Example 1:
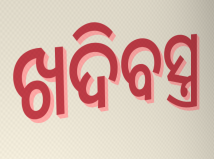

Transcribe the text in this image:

ଖଦିବସ୍ତ୍ର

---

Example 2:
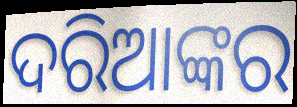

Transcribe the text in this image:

ଦରିଆଙ୍କର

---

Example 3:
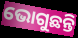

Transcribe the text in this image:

ଭୋଗୁଛନ୍ତି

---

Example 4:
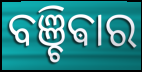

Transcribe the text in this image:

ବଞ୍ଚିଵାର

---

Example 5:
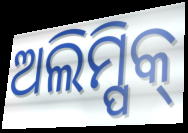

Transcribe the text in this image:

ଅଲିମ୍ପିକ୍